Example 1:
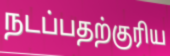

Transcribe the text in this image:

நடப்பதற்குரிய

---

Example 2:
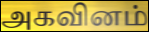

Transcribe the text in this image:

அகவினம்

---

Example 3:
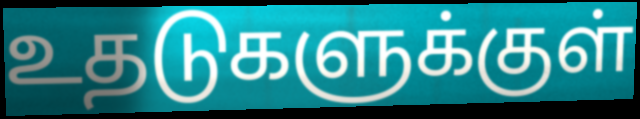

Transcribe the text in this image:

உதடுகளுக்குள்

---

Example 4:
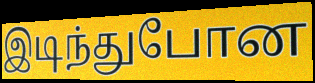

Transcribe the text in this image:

இடிந்துபோன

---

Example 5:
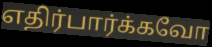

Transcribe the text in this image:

எதிர்பார்க்கவோ